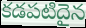
కడపటిదైన